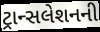
ટ્રાન્સલેશનની